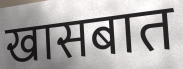
खासबात